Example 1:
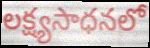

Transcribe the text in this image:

లక్ష్యసాధనలో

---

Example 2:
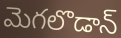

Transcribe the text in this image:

మెగలొడాన్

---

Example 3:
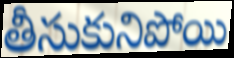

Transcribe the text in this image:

తీసుకునిపోయి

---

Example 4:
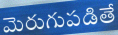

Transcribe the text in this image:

మెరుగుపడితే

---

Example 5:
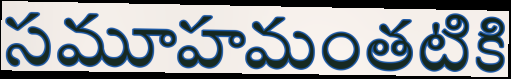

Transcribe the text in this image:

సమూహమంతటికి